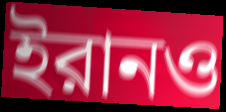
ইরানও